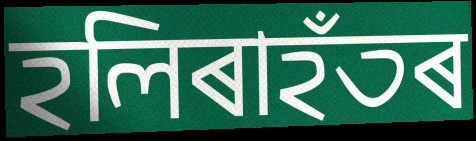
হলিৰাহঁতৰ